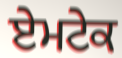
ਏਮਟੇਕ